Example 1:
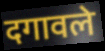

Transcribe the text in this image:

दगावले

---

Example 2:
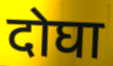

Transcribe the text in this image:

दोघा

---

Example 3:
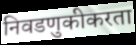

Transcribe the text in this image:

निवडणुकीकरता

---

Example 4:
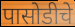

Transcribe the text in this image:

पासोडीचे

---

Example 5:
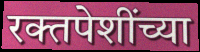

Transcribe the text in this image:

रक्तपेशींच्या